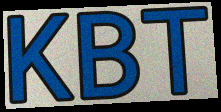
KBT